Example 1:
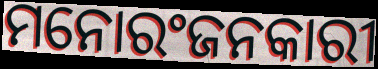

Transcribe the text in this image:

ମନୋରଂଜନକାରୀ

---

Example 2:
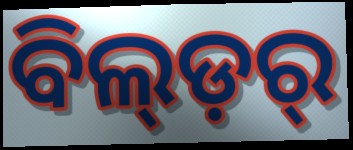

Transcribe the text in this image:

ବିଲ୍ଡ଼ର୍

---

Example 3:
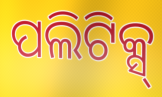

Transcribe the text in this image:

ପଲିଟିକ୍ସ୍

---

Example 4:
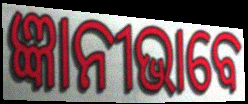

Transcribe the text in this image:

ଜ୍ଞାନୀଭାବେ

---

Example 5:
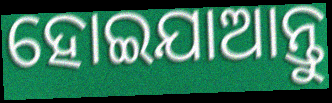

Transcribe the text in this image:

ହୋଇଯାଆନ୍ତୁ